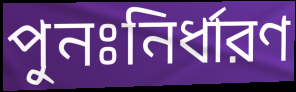
পুনঃনির্ধারণ